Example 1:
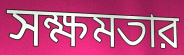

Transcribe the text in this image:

সক্ষমতার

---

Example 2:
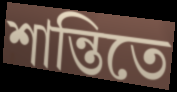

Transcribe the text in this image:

শান্তিতে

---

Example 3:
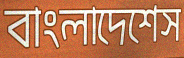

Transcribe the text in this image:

বাংলাদেশেস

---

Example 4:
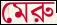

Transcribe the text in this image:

মেরু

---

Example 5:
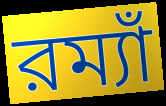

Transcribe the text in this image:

রম্যাঁ